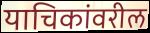
याचिकांवरील